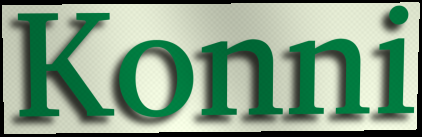
Konni